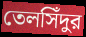
তেলসিঁদুর